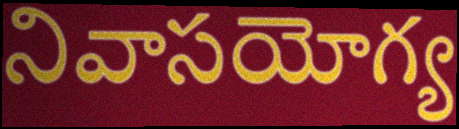
నివాసయోగ్య